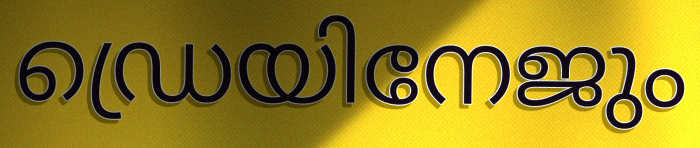
ഡ്രെയിനേജും